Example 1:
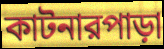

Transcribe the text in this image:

কাটনারপাড়া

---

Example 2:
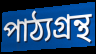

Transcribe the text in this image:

পাঠ্যগ্রন্থ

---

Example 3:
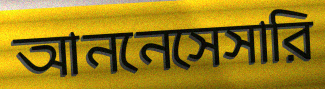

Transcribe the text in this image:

আননেসেসারি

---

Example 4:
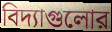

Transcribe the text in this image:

বিদ্যাগুলোর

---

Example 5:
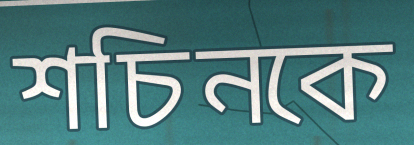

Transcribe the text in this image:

শচিনকে